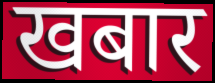
खबार